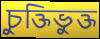
চুক্তিভুক্ত